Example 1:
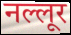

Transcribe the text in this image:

नल्लूर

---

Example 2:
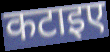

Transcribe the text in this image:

कटाइए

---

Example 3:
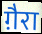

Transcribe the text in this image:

ग़ैरा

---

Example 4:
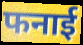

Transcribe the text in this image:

फनाई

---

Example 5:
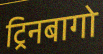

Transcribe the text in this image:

ट्रिनबागो